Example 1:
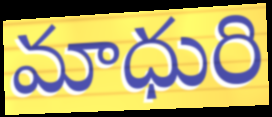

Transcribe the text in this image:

మాధురి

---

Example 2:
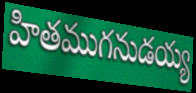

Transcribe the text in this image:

హితముగనుడయ్య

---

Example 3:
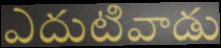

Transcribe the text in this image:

ఎదుటివాడు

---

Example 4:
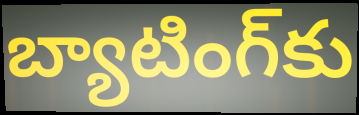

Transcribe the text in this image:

బ్యాటింగ్‌కు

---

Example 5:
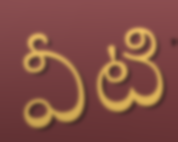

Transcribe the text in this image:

వీటి